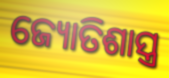
ଜ୍ୟୋତିଶାସ୍ତ୍ର